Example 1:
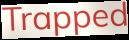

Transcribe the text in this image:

Trapped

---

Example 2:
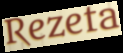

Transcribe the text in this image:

Rezeta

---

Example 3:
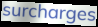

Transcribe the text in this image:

surcharges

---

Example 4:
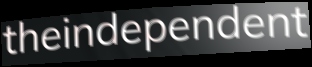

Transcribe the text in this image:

theindependent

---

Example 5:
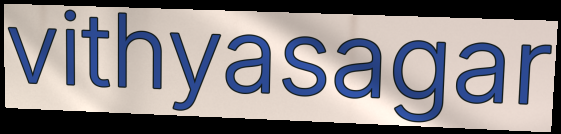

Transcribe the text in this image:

vithyasagar